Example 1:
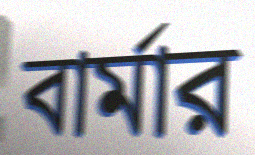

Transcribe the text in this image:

বার্মার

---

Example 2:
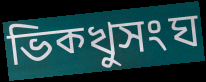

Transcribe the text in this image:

ভিক্খুসংঘ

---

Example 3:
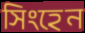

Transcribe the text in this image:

সিংহেন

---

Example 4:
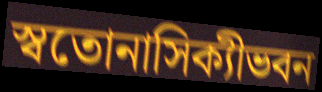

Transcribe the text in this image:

স্বতোনাসিক্যীভবন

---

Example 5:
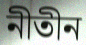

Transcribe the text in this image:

নীতীন